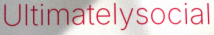
Ultimatelysocial